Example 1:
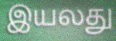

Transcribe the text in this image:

இயலது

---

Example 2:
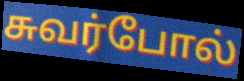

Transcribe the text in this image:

சுவர்போல்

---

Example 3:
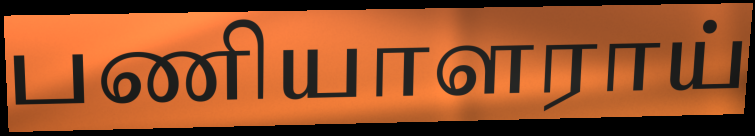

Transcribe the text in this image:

பணியாளராய்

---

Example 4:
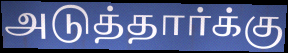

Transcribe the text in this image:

அடுத்தார்க்கு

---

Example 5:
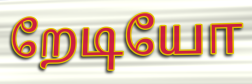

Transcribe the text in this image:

றேடியோ